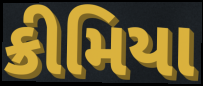
ક્રીમિયા